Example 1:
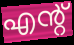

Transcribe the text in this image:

എന്റ്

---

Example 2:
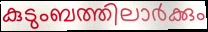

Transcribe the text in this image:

കുടുംബത്തിലാർക്കും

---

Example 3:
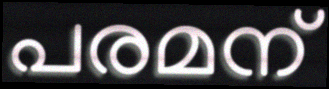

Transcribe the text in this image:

പരമന്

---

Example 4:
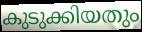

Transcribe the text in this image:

കുടുക്കിയതും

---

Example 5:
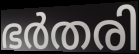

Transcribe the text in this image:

ഭർതരി